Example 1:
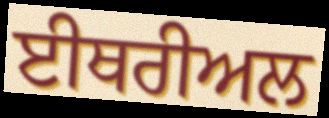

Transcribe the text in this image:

ਈਥਰੀਅਲ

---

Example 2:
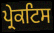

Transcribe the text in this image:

ਪ੍ਰੇਕਟਿਸ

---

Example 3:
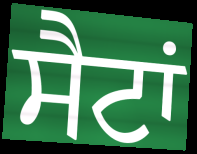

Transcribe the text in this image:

ਸੈਟਾਂ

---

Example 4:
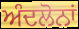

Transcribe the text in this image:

ਅੰਦਲੋਨਾਂ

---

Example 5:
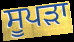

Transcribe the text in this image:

ਸੂਪੜਾ